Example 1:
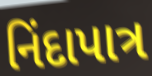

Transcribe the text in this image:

નિંદાપાત્ર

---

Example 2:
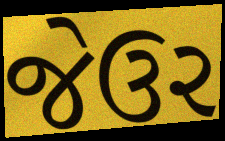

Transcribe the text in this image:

જેઉર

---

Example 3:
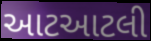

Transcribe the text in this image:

આટઆટલી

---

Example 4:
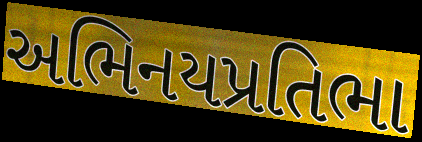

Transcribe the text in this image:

અભિનયપ્રતિભા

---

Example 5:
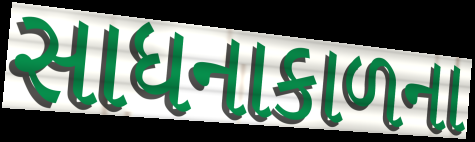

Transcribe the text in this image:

સાધનાકાળના